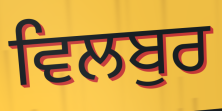
ਵਿਲਬੁਰ